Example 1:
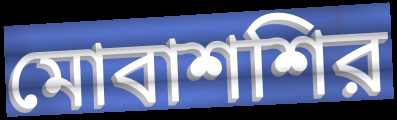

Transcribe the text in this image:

মোবাশশির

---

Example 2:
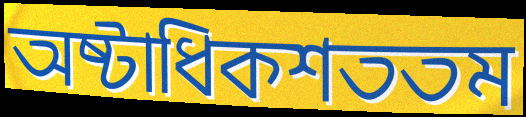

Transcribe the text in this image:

অষ্টাধিকশততম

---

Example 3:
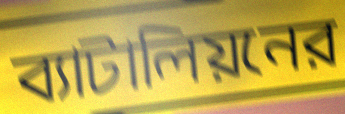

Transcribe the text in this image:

ব্যাটালিয়নের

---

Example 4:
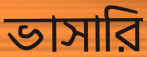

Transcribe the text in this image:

ভাসারি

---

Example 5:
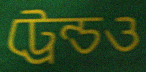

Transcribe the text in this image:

ট্রেন্ডও